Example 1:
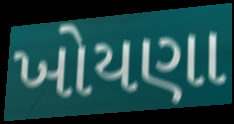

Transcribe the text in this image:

ખોયણા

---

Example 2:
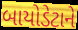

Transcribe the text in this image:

બાયોડેટાને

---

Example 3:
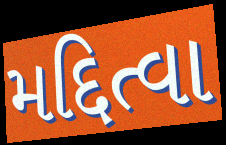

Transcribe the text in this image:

મદ્દિત્વા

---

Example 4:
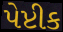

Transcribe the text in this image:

પેપ્ટીક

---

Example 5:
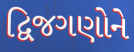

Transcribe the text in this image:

દ્વિજગણોને